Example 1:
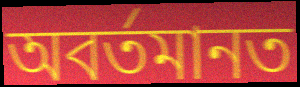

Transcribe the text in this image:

অবৰ্তমানত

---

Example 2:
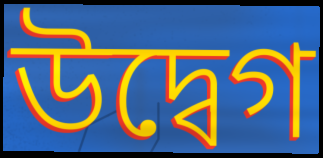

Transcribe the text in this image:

উদ্বেগ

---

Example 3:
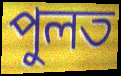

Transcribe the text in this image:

পুলত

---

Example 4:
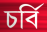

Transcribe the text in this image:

চৰ্বি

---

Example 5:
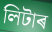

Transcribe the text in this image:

লিটাৰ